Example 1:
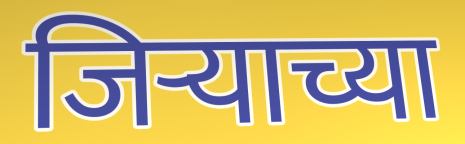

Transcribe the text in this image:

जिऱ्याच्या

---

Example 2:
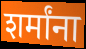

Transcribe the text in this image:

शर्मांना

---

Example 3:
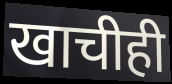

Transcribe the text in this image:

खाचीही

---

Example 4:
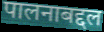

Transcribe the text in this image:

पालनाबद्दल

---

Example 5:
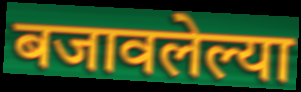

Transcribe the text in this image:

बजावलेल्या